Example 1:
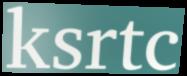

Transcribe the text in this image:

ksrtc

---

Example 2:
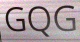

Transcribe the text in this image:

GQG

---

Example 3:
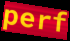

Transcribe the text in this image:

perf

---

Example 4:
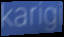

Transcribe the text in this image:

karigi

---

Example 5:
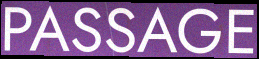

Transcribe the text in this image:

PASSAGE